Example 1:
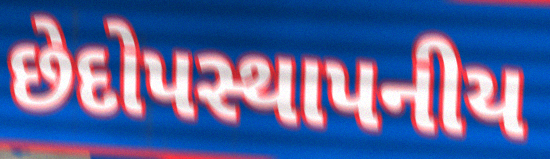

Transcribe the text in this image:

છેદોપસ્થાપનીય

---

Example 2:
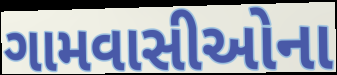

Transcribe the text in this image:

ગામવાસીઓના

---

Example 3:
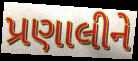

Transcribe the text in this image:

પ્રણાલીને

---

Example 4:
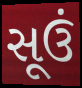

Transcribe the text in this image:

સૂઉં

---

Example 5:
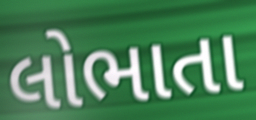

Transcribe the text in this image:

લોભાતા